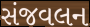
સંજવલન